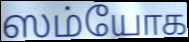
ஸம்யோக